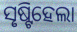
ସୃଷ୍ଟିହେଲା